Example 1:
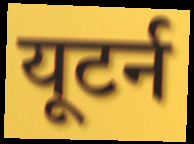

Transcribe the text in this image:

यूटर्न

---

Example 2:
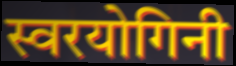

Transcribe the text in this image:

स्वरयोगिनी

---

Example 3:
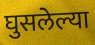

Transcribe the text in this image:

घुसलेल्या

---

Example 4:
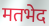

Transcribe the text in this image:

मतभेद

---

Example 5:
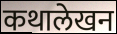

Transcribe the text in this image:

कथालेखन